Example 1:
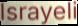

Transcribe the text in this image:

Israyeli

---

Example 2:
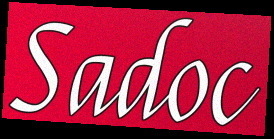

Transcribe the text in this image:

Sadoc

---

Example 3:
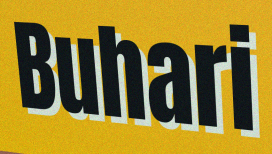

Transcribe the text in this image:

Buhari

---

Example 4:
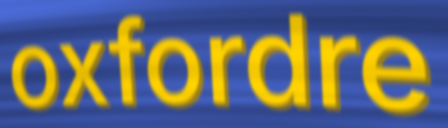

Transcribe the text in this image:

oxfordre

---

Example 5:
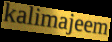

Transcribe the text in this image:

kalimajeem